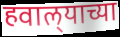
हवाल्याच्या